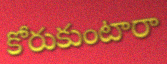
కోరుకుంటారా